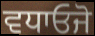
ਵਧਾਓਜੋ